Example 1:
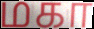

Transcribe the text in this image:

மகா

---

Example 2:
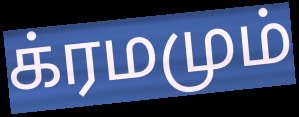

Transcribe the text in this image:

க்ரமமும்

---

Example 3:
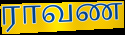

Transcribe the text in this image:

ராவண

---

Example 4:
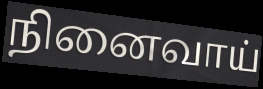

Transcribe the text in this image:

நினைவாய்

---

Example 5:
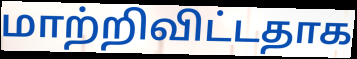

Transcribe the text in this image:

மாற்றிவிட்டதாக